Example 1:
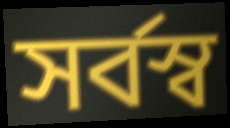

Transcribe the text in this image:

সর্বস্ব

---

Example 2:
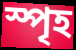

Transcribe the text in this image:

স্পৃহ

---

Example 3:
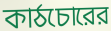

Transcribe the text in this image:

কাঠচোরের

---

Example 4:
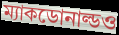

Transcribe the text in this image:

ম্যাকডোনাল্ডও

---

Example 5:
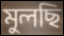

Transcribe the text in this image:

মুলছি